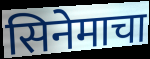
सिनेमाचा